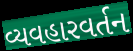
વ્યવહારવર્તન